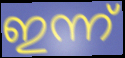
ഇന്ന്